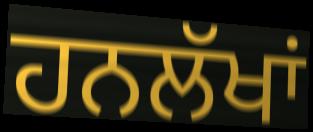
ਹਨਲੱਖਾਂ